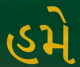
હમે